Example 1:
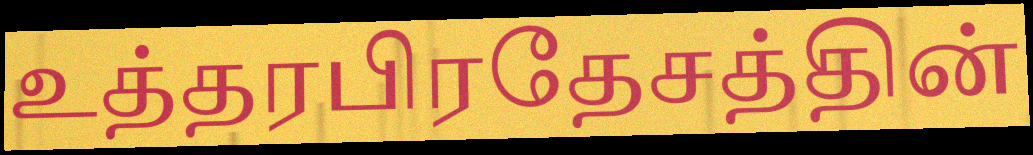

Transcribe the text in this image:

உத்தரபிரதேசத்தின்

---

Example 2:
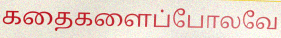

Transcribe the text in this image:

கதைகளைப்போலவே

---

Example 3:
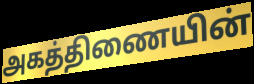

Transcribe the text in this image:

அகத்திணையின்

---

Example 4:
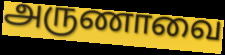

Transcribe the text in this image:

அருணாவை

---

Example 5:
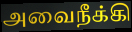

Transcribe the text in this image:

அவைநீக்கி